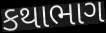
કથાભાગ